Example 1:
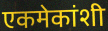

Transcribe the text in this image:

एकमेकांशी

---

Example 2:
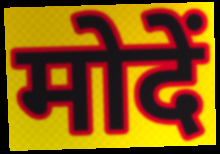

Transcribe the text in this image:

मोदें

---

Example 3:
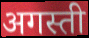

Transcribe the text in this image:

अगस्ती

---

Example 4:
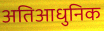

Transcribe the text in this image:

अतिआधुनिक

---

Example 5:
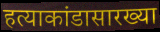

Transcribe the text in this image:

हत्याकांडासारख्या